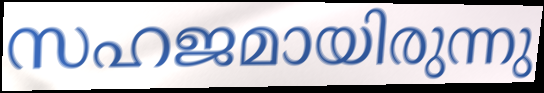
സഹജമായിരുന്നു